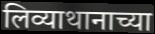
लिव्याथानाच्या